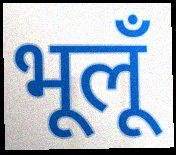
भूलूँ